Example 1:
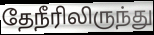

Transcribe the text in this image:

தேநீரிலிருந்து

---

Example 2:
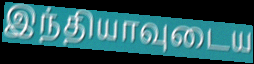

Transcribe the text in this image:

இந்தியாவுடைய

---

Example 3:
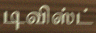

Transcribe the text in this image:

டிவிஸ்ட்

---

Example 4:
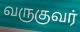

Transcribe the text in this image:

வருகுவர்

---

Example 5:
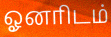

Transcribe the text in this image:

ஓனரிடம்